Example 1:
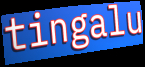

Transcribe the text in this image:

tingalu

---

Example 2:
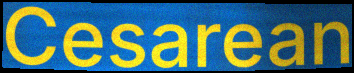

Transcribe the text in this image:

Cesarean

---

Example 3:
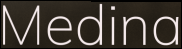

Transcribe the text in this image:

Medina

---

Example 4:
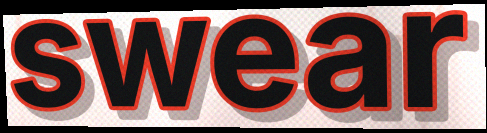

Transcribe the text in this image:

swear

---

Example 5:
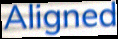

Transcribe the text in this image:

Aligned